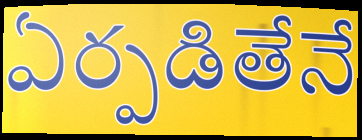
ఏర్పడితేనే